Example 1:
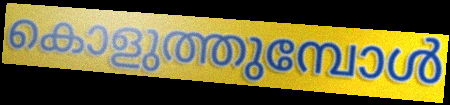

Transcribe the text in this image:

കൊളുത്തുമ്പോൾ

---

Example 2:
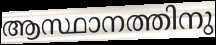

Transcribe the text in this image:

ആസ്ഥാനത്തിനു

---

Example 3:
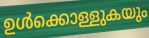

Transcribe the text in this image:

ഉൾക്കൊള്ളുകയും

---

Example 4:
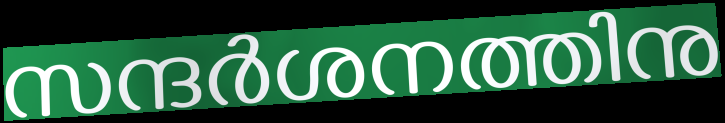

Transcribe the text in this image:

സന്ദർശനത്തിനു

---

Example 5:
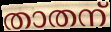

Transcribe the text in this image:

താതന്